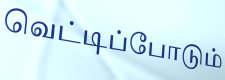
வெட்டிப்போடும்